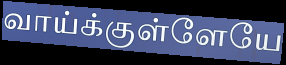
வாய்க்குள்ளேயே